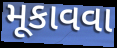
મૂકાવવા